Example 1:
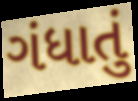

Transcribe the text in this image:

ગંધાતું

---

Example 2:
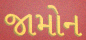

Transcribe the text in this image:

જામોન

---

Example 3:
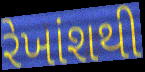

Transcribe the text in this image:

રેખાંશથી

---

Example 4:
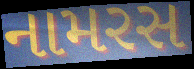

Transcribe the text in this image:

નામરસ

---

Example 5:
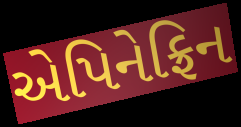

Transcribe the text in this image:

એપિનેફ્રિન